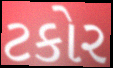
ટકોર